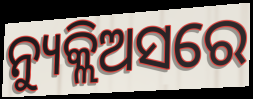
ନ୍ୟୁକ୍ଲିଅସରେ